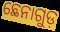
ଛେନାଗୁଡ଼